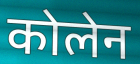
कोलेन